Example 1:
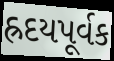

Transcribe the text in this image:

હ્રદયપૂર્વક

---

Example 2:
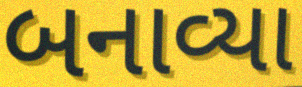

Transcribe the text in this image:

બનાવ્યા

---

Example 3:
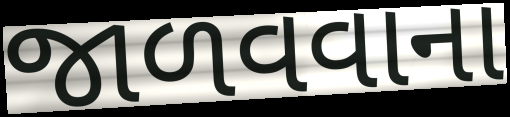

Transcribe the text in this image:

જાળવવાના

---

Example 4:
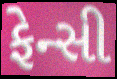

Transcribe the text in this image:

ફેન્સી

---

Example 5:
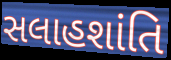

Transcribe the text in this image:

સલાહશાંતિ